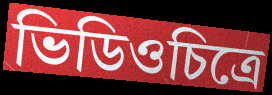
ভিডিওচিত্রে